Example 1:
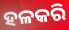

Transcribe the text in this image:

ହଳକରି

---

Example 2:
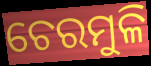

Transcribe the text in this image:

ଚେରମୁଳି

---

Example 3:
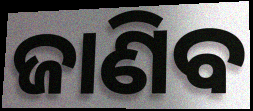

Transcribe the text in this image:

ଜାଣିବ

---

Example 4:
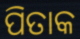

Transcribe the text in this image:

ପିତାକ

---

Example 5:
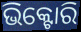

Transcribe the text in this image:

ଭିକ୍ଟୋରି